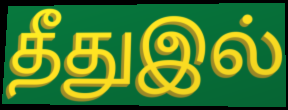
தீதுஇல்